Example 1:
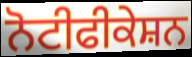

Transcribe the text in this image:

ਨੋਟੀਫੀਕੇਸ਼ਨ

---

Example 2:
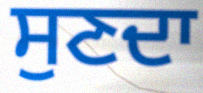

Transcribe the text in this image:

ਸੁਣਦਾ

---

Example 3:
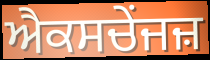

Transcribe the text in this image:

ਐਕਸਚੇਂਜਜ਼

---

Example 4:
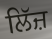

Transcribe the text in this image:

ਲਿੱਜ਼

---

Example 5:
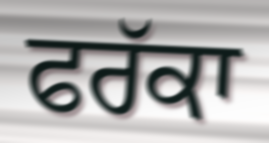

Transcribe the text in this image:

ਫਰੱਕਾ